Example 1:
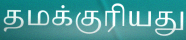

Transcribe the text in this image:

தமக்குரியது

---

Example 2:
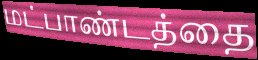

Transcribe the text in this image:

மட்பாண்டத்தை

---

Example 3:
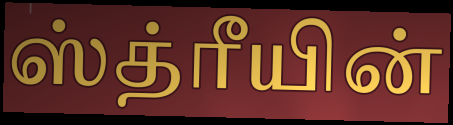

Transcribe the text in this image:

ஸ்த்ரீயின்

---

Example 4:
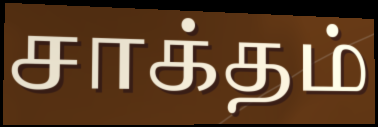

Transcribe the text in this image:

சாக்தம்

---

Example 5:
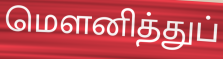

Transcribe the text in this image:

மெளனித்துப்